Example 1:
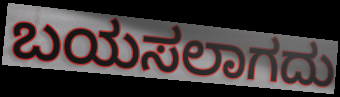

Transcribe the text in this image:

ಬಯಸಲಾಗದು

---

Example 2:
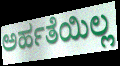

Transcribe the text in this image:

ಅರ್ಹತೆಯಿಲ್ಲ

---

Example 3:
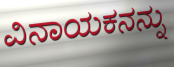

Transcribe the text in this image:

ವಿನಾಯಕನನ್ನು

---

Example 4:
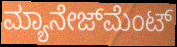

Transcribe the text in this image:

ಮ್ಯಾನೇಜ್‍ಮೆಂಟ್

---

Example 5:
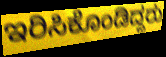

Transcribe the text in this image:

ಇರಿಸಿಕೊಂಡಿದ್ದರು